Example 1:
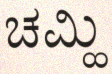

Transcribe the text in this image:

ಚಮ್ಹಿ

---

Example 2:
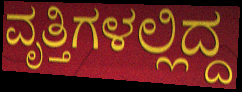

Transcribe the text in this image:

ವೃತ್ತಿಗಳಲ್ಲಿದ್ದ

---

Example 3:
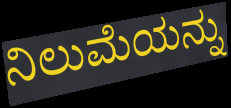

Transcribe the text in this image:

ನಿಲುಮೆಯನ್ನು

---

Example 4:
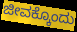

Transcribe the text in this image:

ಜೀವಕ್ಕೊಂದು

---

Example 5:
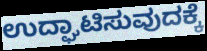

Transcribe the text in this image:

ಉದ್ಘಾಟಿಸುವುದಕ್ಕೆ